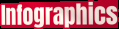
Infographics